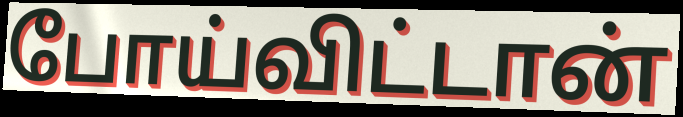
போய்விட்டான்